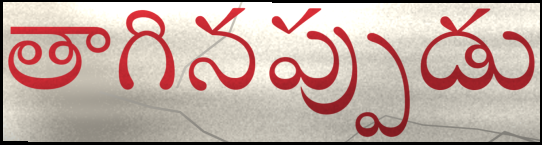
తాగినప్పుడు